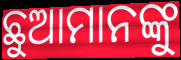
ଛୁଆମାନଙ୍କୁ